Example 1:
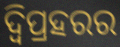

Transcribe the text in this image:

ଦ୍ୱିପ୍ରହରର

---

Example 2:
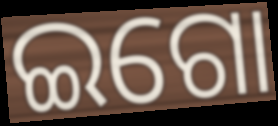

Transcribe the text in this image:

ଇଗୋ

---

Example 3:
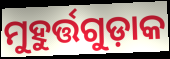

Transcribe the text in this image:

ମୁହୁର୍ତ୍ତଗୁଡ଼ାକ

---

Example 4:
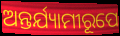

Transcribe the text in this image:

ଅନ୍ତର୍ଯ୍ୟାମୀରୂପେ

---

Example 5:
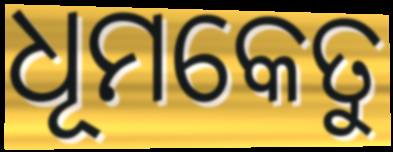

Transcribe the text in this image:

ଧୂମକେତୁ